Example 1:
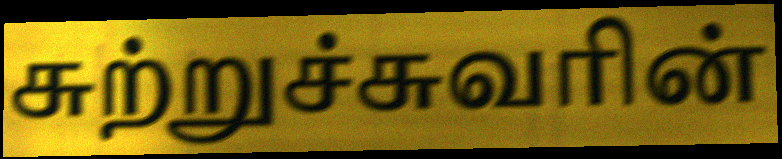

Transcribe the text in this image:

சுற்றுச்சுவரின்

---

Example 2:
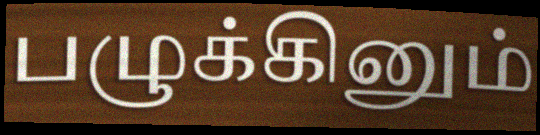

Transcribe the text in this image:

பழுக்கினும்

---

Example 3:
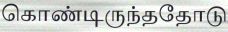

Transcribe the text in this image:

கொண்டிருந்ததோடு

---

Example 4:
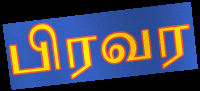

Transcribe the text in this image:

பிரவர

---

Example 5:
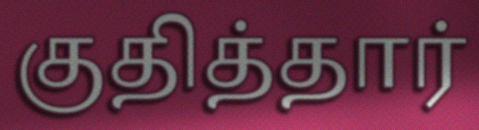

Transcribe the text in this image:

குதித்தார்